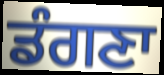
ਡੰਗਣਾ